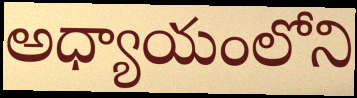
అధ్యాయంలోని